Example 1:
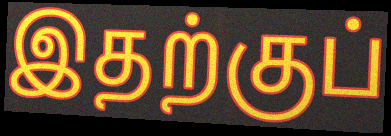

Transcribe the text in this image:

இதற்குப்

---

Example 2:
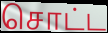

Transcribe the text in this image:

சொட்ட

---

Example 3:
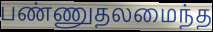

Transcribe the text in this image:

பண்ணுதலமைந்த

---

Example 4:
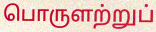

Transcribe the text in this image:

பொருளற்றுப்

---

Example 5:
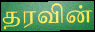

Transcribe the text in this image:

தரவின்